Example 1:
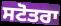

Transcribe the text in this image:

ਸਟੋਤਰਾ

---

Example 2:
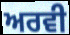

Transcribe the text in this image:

ਅਰਵੀ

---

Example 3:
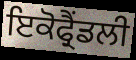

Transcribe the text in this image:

ਇਕੋਫ੍ਰੈਂਡਲੀ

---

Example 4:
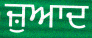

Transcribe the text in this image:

ਜ਼ੁਆਦ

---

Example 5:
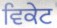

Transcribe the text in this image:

ਵਿਕੇਟ